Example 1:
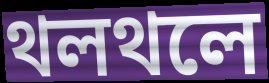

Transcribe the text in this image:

থলথলে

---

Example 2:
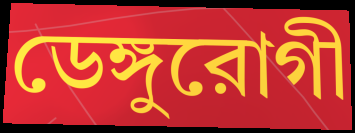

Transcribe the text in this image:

ডেঙ্গুরোগী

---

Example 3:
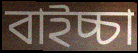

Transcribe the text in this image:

বাইচ্চা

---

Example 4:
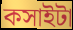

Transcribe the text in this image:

কসাইটা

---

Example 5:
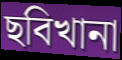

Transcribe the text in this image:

ছবিখানা